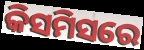
କିସମିସରେ